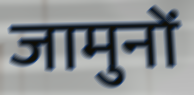
जामुनों